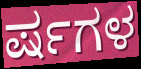
ರ್ಷಗಳ